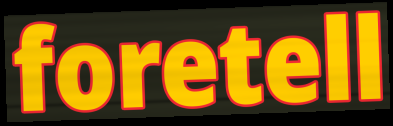
foretell